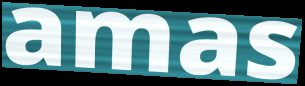
amas